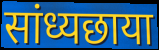
सांध्यछाया